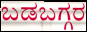
ಬಡಬಗ್ಗರ